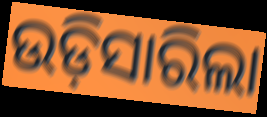
ଉଡ଼ିସାରିଲା